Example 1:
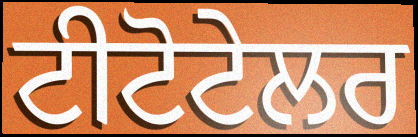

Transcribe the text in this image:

ਟੀਟੋਟੇਲਰ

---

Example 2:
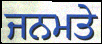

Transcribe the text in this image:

ਜਨਮਤੇ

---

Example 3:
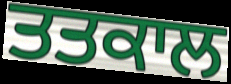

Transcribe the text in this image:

ਤਤਕਾਲ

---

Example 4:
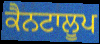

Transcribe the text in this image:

ਕੈਨਟਾਲੂਪ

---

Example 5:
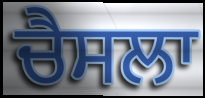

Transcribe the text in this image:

ਚੈਸਲਾ